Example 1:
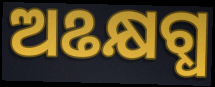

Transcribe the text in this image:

ଅଌକ୍ଷଗ୍ଧ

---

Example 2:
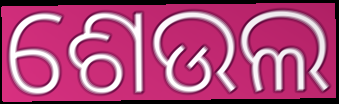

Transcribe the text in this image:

ଶେଉଲ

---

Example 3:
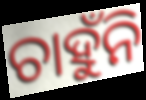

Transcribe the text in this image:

ଚାହୁଁନି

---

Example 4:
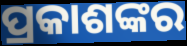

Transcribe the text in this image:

ପ୍ରକାଶଙ୍କର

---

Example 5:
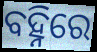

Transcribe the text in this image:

ବହ୍ନିରେ